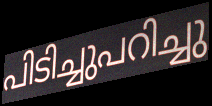
പിടിച്ചുപറിച്ചു